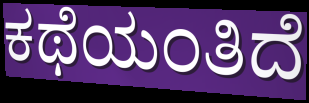
ಕಥೆಯಂತಿದೆ